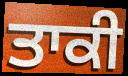
ਤਾਕੀ